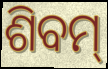
ଶିବମ୍